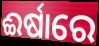
ଈର୍ଷାରେ